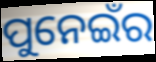
ପୁନେଇଁର